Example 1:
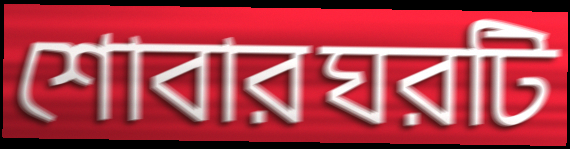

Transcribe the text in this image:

শোবারঘরটি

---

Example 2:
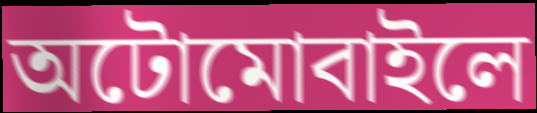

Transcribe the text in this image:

অটোমোবাইলে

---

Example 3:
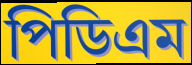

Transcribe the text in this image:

পিডিএম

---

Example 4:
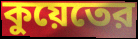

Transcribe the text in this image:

কুয়েতের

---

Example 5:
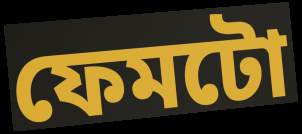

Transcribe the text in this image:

ফেমটো